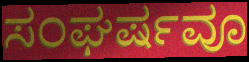
ಸಂಘರ್ಷವೂ